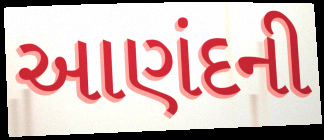
આણંદની